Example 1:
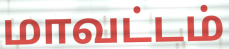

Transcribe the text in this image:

மாவட்டம்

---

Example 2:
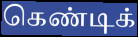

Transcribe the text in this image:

கெண்டிக்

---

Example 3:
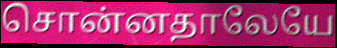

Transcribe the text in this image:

சொன்னதாலேயே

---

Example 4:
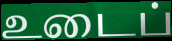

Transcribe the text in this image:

உடைப்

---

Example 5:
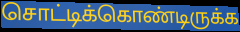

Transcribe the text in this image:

சொட்டிக்கொண்டிருக்க